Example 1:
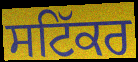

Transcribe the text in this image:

ਸਟਿੱਕਰ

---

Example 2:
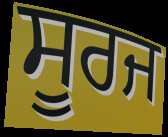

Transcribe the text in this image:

ਸੂਰਜ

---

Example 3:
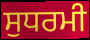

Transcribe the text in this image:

ਸੁਧਰਮੀ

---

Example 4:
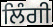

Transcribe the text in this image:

ਲਿੰਗੀ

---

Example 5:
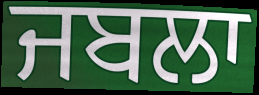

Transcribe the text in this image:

ਜਬਲਾ